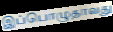
இப்பொழுதாவது